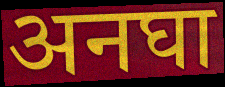
अनघा